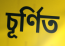
চূর্ণিত